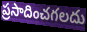
ప్రసాదించగలదు